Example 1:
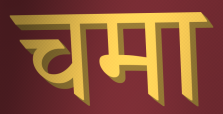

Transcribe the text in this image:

चमा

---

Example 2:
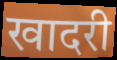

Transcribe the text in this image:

खादरी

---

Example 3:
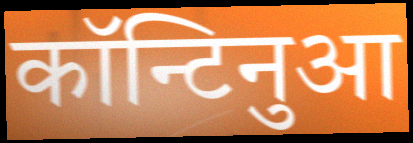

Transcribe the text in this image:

कॉन्टिनुआ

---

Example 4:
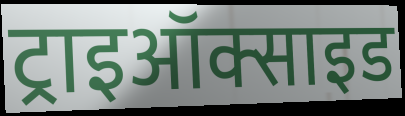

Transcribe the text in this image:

ट्राइऑक्साइड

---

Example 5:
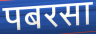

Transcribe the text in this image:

पबरसा